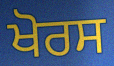
ਖੋਰਸ